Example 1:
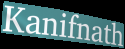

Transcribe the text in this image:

Kanifnath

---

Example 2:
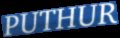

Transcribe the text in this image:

PUTHUR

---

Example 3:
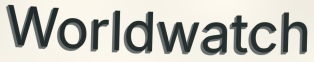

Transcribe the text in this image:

Worldwatch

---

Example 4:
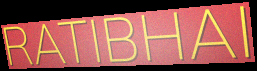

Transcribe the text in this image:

RATIBHAI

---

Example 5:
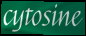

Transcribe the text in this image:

cytosine